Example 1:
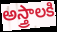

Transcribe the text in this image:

అస్త్రాలకి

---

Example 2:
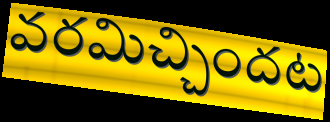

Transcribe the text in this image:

వరమిచ్చిందట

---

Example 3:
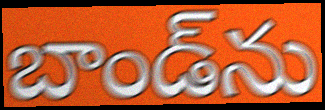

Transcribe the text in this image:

బాండ్‌ను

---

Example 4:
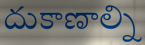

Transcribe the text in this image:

దుకాణాల్ని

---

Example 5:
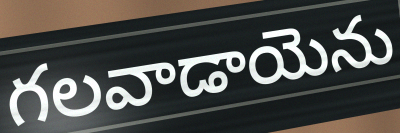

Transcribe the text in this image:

గలవాడాయెను